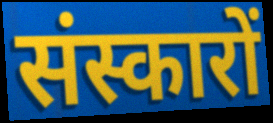
संस्कारों